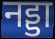
नड्डा